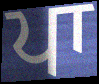
ਪਾ